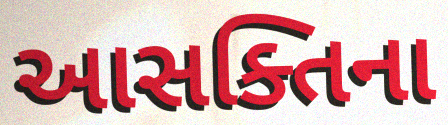
આસક્તિના